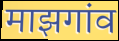
माझगांव